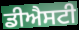
ਡੀਐਸਟੀ